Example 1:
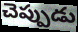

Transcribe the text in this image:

చెప్పుడు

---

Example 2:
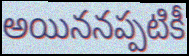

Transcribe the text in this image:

అయిననప్పటికీ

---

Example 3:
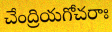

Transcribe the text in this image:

చేంద్రియగోచరాః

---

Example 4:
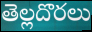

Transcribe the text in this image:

తెల్లదొరలు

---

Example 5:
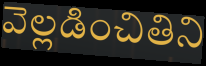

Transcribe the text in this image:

వెల్లడించితిని